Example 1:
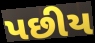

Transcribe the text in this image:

પછીય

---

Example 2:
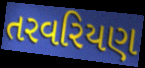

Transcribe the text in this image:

તરવરિયણ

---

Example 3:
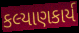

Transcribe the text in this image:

કલ્યાણકાર્ય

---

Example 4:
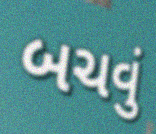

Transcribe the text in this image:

બચવું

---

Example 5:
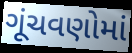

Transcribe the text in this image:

ગૂંચવણોમાં